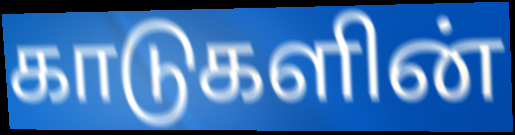
காடுகளின்